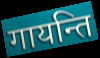
गायन्ति